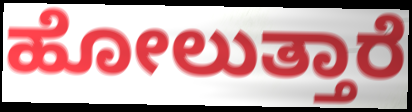
ಹೋಲುತ್ತಾರೆ